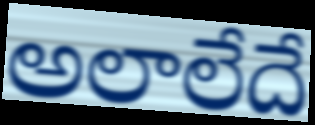
అలాలేదే